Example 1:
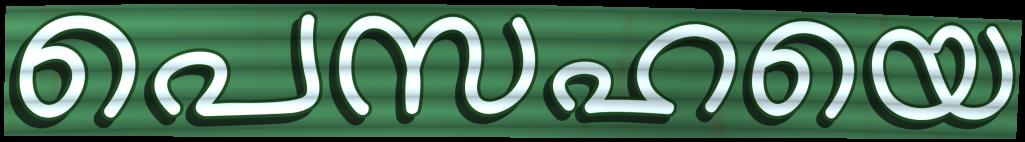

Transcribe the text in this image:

പെസഹയെ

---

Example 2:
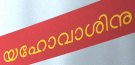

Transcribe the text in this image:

യഹോവാശിനു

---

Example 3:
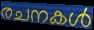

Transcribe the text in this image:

രചനകൾ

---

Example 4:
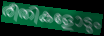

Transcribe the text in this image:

രീതികളോടും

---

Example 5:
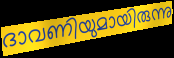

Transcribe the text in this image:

ദാവണിയുമായിരുന്നു